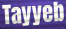
Tayyeb